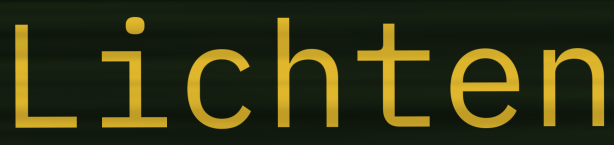
Lichten